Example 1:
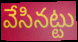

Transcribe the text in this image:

వేసినట్టు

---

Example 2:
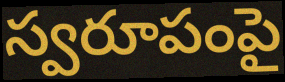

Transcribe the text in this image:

స్వరూపంపై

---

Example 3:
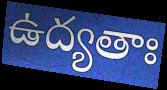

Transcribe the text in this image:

ఉద్యతాః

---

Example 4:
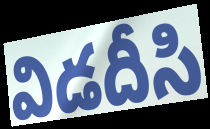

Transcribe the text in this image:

విడదీసి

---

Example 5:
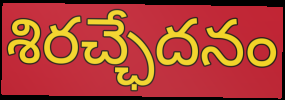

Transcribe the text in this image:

శిరచ్ఛేదనం